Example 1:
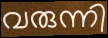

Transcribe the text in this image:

വരുന്നി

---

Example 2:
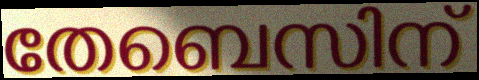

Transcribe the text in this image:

തേബെസിന്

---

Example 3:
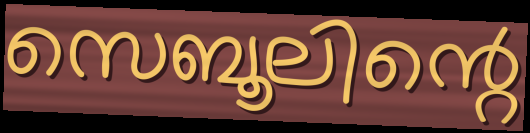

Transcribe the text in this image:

സെബൂലിന്റെ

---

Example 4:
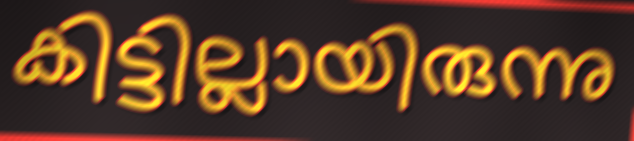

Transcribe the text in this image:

കിട്ടില്ലായിരുന്നു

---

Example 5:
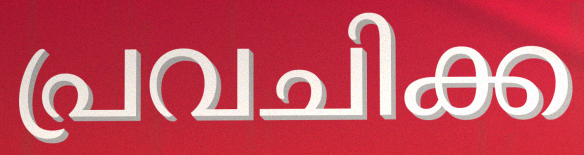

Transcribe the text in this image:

പ്രവചിക്ക